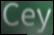
Cey